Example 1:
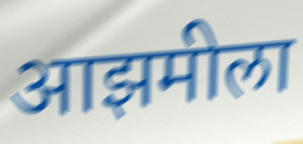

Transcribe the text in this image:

आझमीला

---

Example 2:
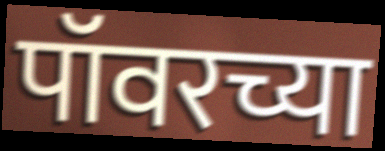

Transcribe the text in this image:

पॉवरच्या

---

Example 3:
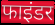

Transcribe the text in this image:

फाइंडर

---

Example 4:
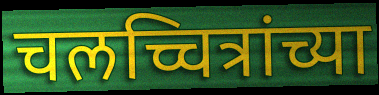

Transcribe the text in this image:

चलच्चित्रांच्या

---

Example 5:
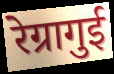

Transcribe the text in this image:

रेग्रागुई